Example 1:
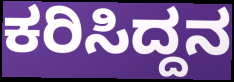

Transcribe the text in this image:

ಕರಿಸಿದ್ದನ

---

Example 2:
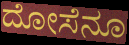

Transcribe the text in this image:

ದೋಸೆನೂ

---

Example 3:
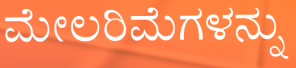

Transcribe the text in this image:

ಮೇಲರಿಮೆಗಳನ್ನು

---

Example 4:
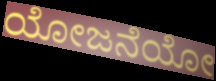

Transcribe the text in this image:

ಯೋಜನೆಯೋ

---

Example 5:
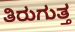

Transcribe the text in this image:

ತಿರುಗುತ್ತ